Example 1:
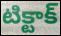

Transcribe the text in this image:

టిక్టాక్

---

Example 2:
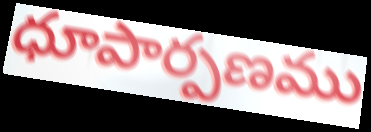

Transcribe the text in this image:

ధూపార్పణము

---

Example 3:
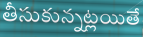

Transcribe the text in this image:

తీసుకున్నట్లయితే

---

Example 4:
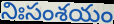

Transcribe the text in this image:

నిఃసంశయం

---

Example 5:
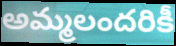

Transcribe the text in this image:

అమ్మలందరికీ